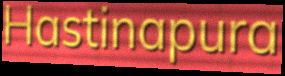
Hastinapura